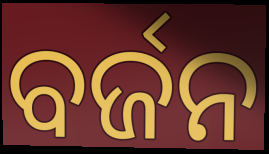
ବର୍ଜନ